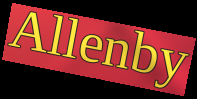
Allenby